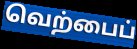
வெற்பைப்